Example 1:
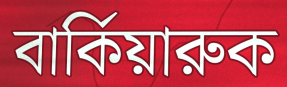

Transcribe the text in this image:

বার্কিয়ারুক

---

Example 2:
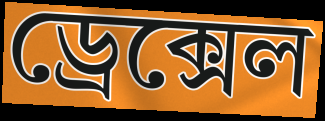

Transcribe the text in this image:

ড্রেক্সেল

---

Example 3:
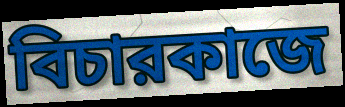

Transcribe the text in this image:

বিচারকাজে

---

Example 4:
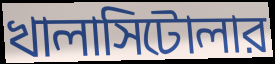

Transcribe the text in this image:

খালাসিটোলার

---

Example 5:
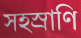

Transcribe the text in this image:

সহস্রাণি